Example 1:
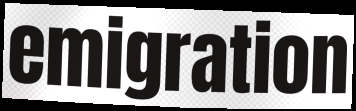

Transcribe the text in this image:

emigration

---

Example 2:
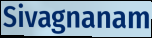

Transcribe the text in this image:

Sivagnanam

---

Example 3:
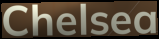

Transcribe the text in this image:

Chelsea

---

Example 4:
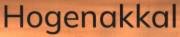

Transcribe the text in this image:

Hogenakkal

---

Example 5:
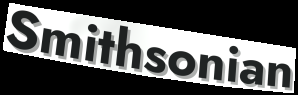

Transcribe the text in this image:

Smithsonian